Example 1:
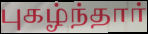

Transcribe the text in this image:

புகழ்ந்தார்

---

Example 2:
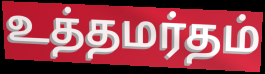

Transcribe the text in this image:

உத்தமர்தம்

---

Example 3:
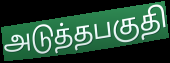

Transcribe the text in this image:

அடுத்தபகுதி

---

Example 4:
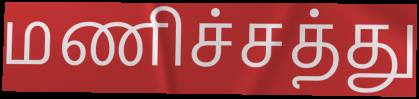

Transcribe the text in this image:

மணிச்சத்து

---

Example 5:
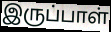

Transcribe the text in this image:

இருப்பாள்